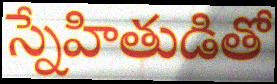
స్నేహితుడితో